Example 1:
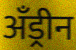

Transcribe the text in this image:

अँड्रीन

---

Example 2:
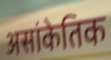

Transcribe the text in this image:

असांकेतिक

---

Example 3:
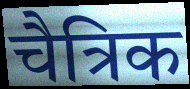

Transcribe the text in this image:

चैत्रिक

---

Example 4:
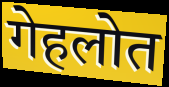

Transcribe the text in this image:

गेहलोत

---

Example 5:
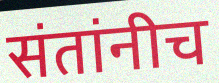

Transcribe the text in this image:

संतांनीच